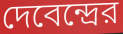
দেবেন্দ্রের